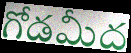
గోడమీద